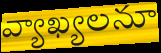
వ్యాఖ్యలనూ